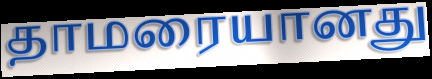
தாமரையானது